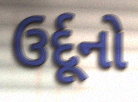
ઉર્દૂનો